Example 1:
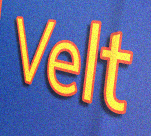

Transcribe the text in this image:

Velt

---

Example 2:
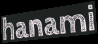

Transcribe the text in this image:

hanami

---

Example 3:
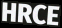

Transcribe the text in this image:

HRCE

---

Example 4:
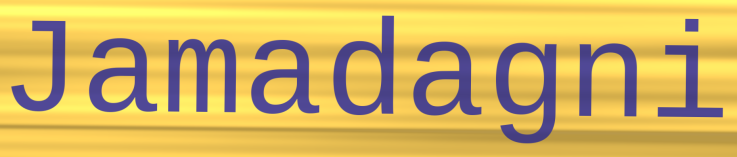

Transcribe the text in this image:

Jamadagni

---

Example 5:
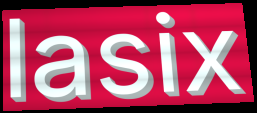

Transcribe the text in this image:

lasix